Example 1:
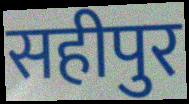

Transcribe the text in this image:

सहीपुर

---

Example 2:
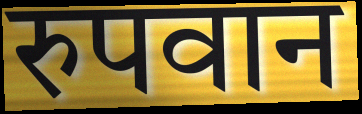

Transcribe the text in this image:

रुपवान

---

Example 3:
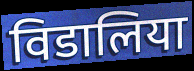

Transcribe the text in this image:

विडालिया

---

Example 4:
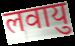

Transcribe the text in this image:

लवायु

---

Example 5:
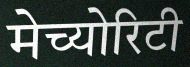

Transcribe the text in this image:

मेच्योरिटी